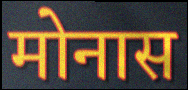
मोनास